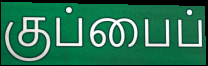
குப்பைப்